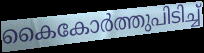
കൈകോർത്തുപിടിച്ച്